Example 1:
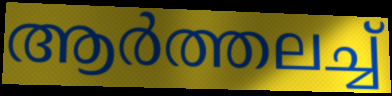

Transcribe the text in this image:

ആർത്തലച്ച്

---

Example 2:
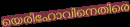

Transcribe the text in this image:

യെരിഹോവിനെതിരെ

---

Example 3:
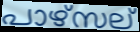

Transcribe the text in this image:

പാഴ്സല്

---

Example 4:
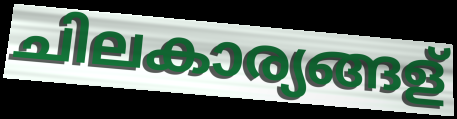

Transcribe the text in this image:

ചിലകാര്യങ്ങള്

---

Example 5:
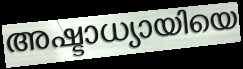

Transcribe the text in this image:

അഷ്ടാധ്യായിയെ